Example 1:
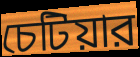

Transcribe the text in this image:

চেটিয়ার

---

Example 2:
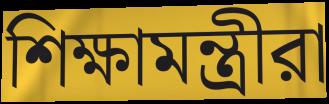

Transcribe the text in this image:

শিক্ষামন্ত্রীরা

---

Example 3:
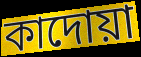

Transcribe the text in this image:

কাদোয়া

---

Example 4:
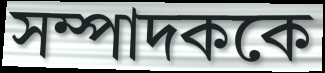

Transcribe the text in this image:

সম্পাদককে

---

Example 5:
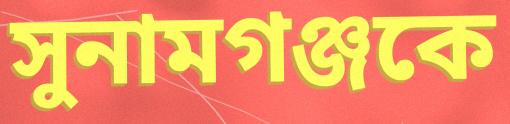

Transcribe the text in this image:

সুনামগঞ্জকে